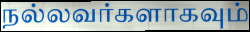
நல்லவர்களாகவும்